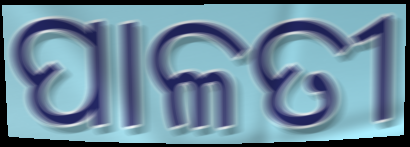
ପାଳତୀ